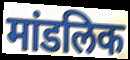
मांडलिक